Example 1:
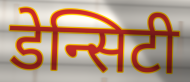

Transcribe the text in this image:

डेन्सिटी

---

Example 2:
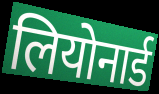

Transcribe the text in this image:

लियोनार्ड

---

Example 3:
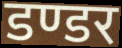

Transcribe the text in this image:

डण्डर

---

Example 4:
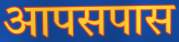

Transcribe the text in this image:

आपसपास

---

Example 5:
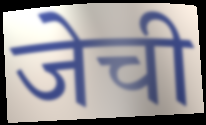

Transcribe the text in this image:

जेची